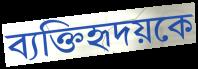
ব্যক্তিহৃদয়কে